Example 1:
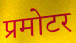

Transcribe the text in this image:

प्रमोटर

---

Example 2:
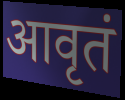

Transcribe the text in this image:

आवृतं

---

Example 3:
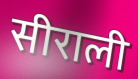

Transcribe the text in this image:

सीराली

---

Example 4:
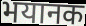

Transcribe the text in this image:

भयानक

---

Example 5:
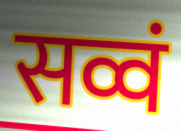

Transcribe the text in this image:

सव्वं